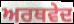
ਅਰਥਵੇਦ